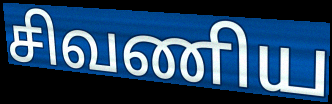
சிவணிய